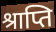
श्राप्ति